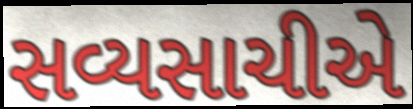
સવ્યસાચીએ